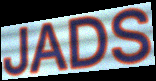
JADS